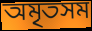
অমৃতসম